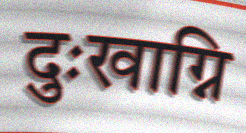
दुःखाग्नि